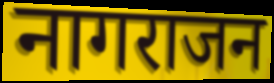
नागराजन